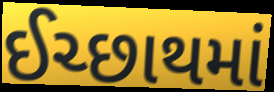
ઈચ્છાથમાં